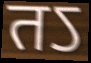
तऽ